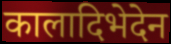
कालादिभेदेन